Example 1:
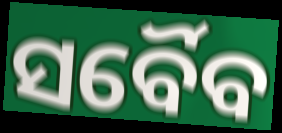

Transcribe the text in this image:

ସର୍ବୈବ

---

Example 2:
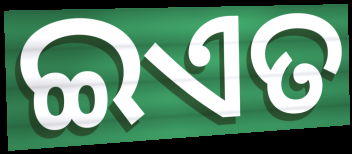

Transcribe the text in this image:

ଇଏତ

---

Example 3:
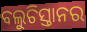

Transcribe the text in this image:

ବଲୁଚିସ୍ତାନର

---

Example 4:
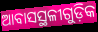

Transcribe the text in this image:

ଆବାସସ୍ଥଳୀଗୁଡ଼ିକ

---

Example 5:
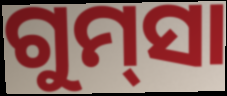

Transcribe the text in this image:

ଗୁମ୍‌ସା